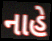
નાહે